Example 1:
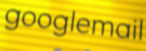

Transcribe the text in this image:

googlemail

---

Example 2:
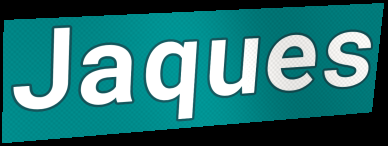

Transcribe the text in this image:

Jaques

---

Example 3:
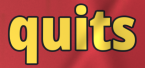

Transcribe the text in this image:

quits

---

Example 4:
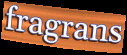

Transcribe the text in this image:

fragrans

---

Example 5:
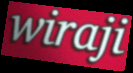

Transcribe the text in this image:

wiraji